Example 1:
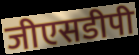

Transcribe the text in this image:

जीएसडीपी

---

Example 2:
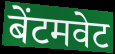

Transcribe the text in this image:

बेंटमवेट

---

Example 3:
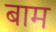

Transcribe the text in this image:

बाम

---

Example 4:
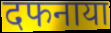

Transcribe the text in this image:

दफनाया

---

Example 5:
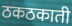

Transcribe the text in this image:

ठकठकाती